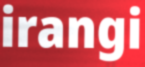
irangi